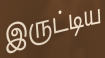
இருட்டிய